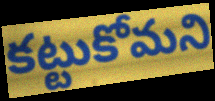
కట్టుకోమని